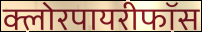
क्लोरपायरीफॉस